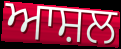
ਆਸ਼ਲ